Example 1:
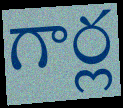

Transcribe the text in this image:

గార్ల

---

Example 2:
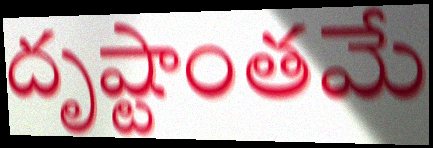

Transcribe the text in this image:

దృష్టాంతమే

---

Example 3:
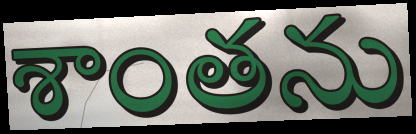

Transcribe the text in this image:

శాంతను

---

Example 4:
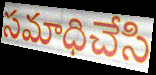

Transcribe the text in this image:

సమాధిచేసి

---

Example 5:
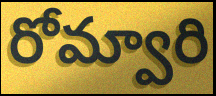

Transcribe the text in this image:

రోమ్వారి